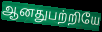
ஆனதுபற்றியே